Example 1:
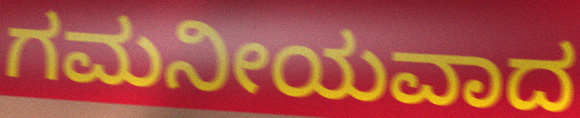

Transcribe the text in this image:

ಗಮನೀಯವಾದ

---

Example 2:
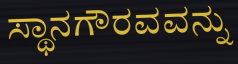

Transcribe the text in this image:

ಸ್ಥಾನಗೌರವವನ್ನು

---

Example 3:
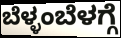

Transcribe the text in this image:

ಬೆಳ್ಳಂಬೆಳಗ್ಗೆ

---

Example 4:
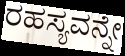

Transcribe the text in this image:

ರಹಸ್ಯವನ್ನೇ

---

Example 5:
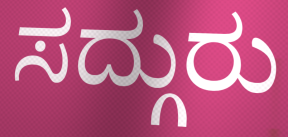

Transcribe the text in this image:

ಸದ್ಗುರು